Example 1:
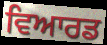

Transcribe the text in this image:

ਵਿਆਰਡ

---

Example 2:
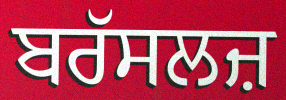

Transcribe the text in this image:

ਬਰੱਸਲਜ਼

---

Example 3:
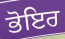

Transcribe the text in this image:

ਭੋਇਰ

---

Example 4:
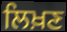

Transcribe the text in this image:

ਲਿਖ਼ਣ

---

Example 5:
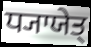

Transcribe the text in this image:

ਧ੍ਯਾਯੇਤ੍